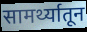
सामर्थ्यातून